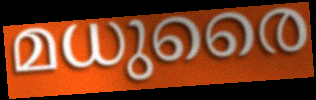
മധുരൈ